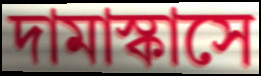
দামাস্কাসে